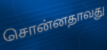
சொன்னதாவது